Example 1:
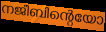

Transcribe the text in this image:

നജീബിന്റെയോ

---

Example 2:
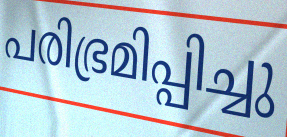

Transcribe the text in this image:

പരിഭ്രമിപ്പിച്ചു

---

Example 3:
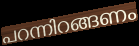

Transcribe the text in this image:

പറന്നിറങ്ങണം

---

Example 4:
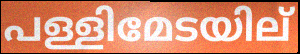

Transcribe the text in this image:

പള്ളിമേടയില്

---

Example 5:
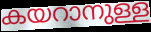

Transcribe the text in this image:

കയറാനുള്ള